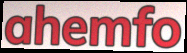
ahemfo